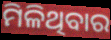
ମିଳିଥିବାର